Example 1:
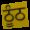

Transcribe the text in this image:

ਠੂੰਠ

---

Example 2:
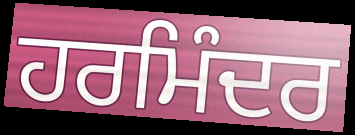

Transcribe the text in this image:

ਹਰਮਿੰਦਰ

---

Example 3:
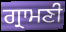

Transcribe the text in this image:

ਗ੍ਰਾਮਣੀ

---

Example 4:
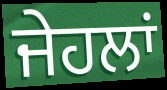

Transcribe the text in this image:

ਜੇਹਲਾਂ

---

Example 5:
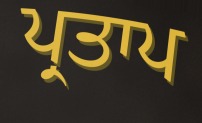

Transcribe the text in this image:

ਪ੍ਰਤਾਪ